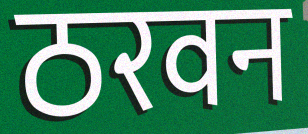
ठरवन